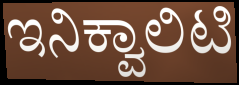
ಇನಿಕ್ವಾಲಿಟಿ